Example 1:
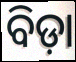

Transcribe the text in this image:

ବିଡ଼ା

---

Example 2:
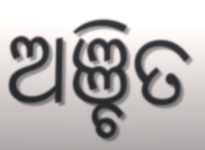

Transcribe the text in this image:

ଅଞ୍ଚିତ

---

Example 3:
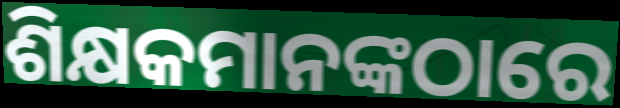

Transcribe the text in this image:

ଶିକ୍ଷକମାନଙ୍କଠାରେ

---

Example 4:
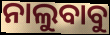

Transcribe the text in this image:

ନାଲୁବାବୁ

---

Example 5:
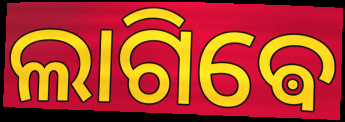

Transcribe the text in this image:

ଲାଗିଵେ